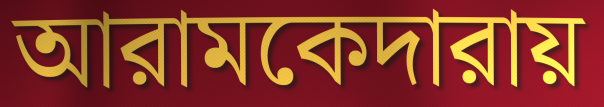
আরামকেদারায়